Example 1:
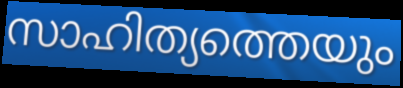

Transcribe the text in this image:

സാഹിത്യത്തെയും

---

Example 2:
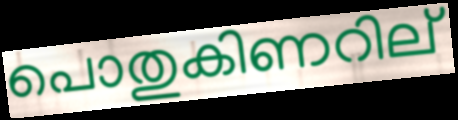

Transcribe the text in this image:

പൊതുകിണറില്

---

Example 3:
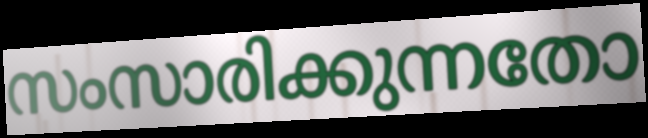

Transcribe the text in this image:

സംസാരിക്കുന്നതോ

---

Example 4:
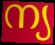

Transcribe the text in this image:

ന്യ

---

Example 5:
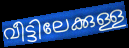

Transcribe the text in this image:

വീട്ടിലേക്കുള്ള